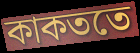
কাকততে